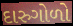
દારુગોળો